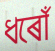
ধৰোঁ